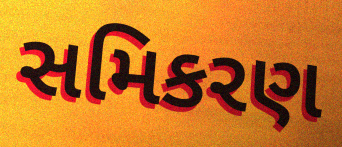
સમિકરણ